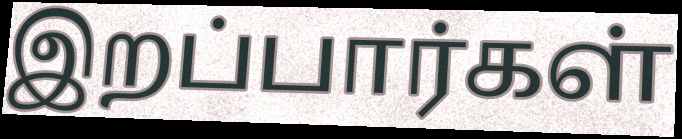
இறப்பார்கள்